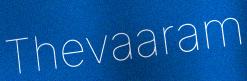
Thevaaram